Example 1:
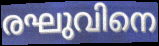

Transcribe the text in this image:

രഘുവിനെ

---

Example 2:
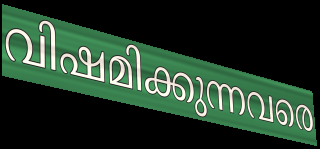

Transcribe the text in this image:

വിഷമിക്കുന്നവരെ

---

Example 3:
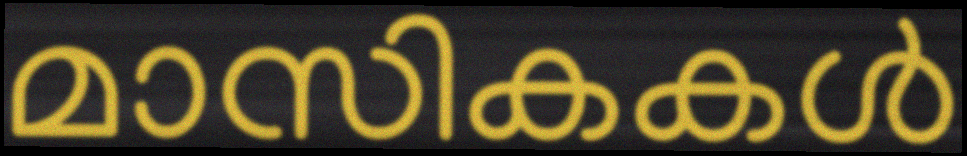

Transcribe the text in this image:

മാസികകൾ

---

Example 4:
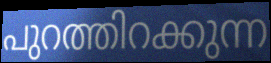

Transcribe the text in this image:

പുറത്തിറക്കുന്ന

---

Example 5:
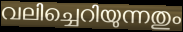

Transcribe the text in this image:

വലിച്ചെറിയുന്നതും